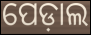
ପେଡ଼ାଲ